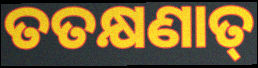
ତତକ୍ଷଣାତ୍